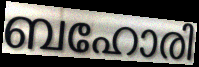
ബഹോരി